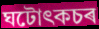
ঘটোৎকচৰ